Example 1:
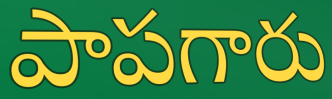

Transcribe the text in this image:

పాపగారు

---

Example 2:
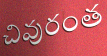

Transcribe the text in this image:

చివురంత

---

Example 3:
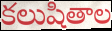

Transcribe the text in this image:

కలుషితాల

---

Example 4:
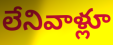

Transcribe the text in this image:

లేనివాళ్లూ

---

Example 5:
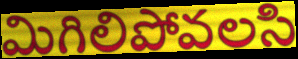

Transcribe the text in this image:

మిగిలిపోవలసి